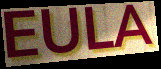
EULA